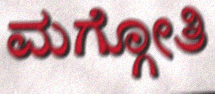
ಮಗ್ಗೋತಿ